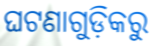
ଘଟଣାଗୁଡ଼ିକରୁ